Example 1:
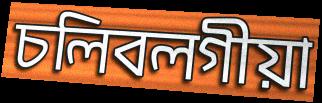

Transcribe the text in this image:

চলিবলগীয়া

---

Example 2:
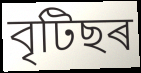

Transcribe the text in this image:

বৃটিছৰ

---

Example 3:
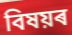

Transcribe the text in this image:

বিষয়ৰ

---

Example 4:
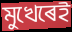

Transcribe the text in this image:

মুখেৰেই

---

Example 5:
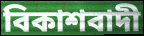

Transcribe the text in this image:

বিকাশবাদী